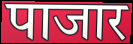
पाजार